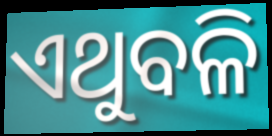
ଏଥୁବଳି